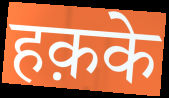
हक़के